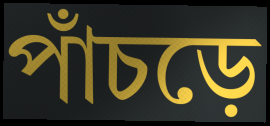
পাঁচড়ে